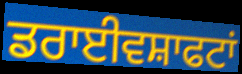
ਡਰਾਈਵਸ਼ਾਫਟਾਂ